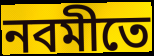
নবমীতে